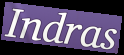
Indras